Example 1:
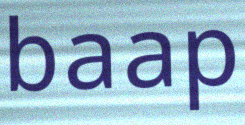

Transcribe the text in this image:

baap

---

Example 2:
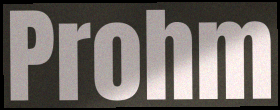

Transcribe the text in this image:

Prohm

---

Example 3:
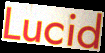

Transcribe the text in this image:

Lucid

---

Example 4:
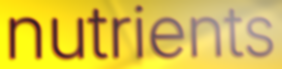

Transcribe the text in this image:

nutrients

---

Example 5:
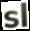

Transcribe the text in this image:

sl